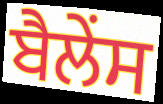
ਬੈਲੇਂਸ